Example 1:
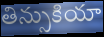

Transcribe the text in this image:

తిన్సుకియా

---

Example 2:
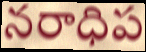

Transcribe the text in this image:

నరాధిప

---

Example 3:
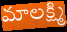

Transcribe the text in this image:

మాలక్ష్మి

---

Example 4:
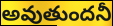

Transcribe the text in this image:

అవుతుందనీ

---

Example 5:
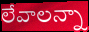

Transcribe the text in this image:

లేవాలన్నా